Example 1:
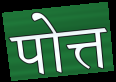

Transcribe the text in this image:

पोत्त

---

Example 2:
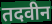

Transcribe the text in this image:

तदवीन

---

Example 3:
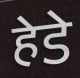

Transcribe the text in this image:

हेडे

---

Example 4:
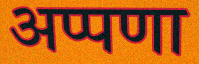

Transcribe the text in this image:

अप्पणा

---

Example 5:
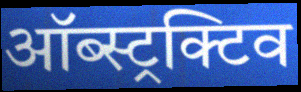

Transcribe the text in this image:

ऑब्स्ट्रक्टिव